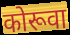
कोरूवा